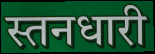
स्तनधारी